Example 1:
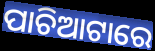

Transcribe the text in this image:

ପାଚିଆଟାରେ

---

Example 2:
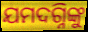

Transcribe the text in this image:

ଯମଦଗ୍ନିଙ୍କୁ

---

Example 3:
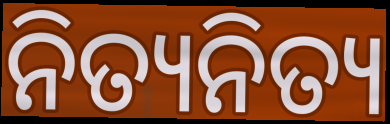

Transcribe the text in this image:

ନିତ୍ୟନିତ୍ୟ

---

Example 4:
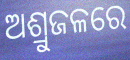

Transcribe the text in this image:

ଅଶ୍ରୁଜଳରେ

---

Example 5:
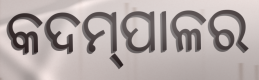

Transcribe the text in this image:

କଦମ୍‍ପାଳର